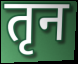
तृन